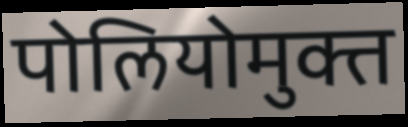
पोलियोमुक्त